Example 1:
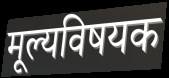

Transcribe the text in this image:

मूल्यविषयक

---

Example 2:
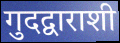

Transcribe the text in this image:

गुदद्वाराशी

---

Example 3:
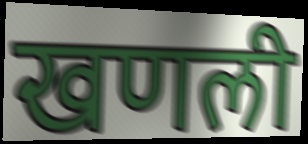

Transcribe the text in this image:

खणली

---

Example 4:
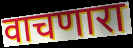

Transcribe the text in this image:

वाचणारा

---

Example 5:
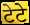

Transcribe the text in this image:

टेटे